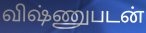
விஷ்ணுபடன்